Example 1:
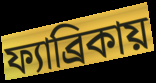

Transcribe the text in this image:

ফ্যাব্রিকায়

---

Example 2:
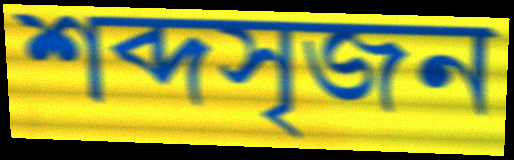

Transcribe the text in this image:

শব্দসৃজন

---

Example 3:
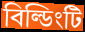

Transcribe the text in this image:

বিল্ডিংটি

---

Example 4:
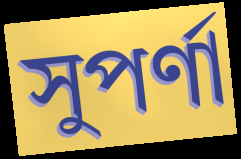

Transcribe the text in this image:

সুপর্ণা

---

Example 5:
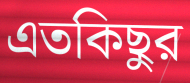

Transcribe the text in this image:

এতকিছুর